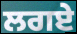
ਲਗਏ